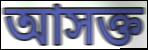
আসক্ত